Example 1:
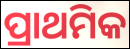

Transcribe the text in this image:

ପ୍ରାଥମିକ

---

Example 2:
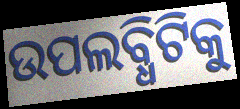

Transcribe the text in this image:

ଉପଲବ୍ଧିଟିକୁ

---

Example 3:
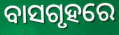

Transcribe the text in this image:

ବାସଗୃହରେ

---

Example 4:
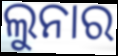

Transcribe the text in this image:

ଲୁନାର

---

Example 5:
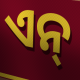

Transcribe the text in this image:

ଏନ୍